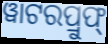
ୱାଟରପ୍ରୁଫ୍